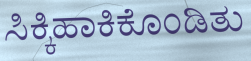
ಸಿಕ್ಕಿಹಾಕಿಕೊಂಡಿತು